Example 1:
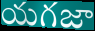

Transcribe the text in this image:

యగజా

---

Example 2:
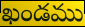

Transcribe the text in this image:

ఖండము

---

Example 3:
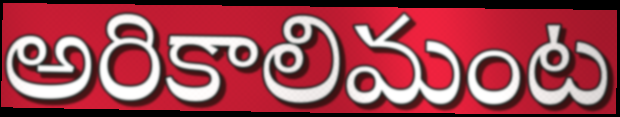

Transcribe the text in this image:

అరికాలిమంట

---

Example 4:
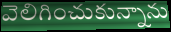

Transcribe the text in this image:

వెలిగించుకున్నాను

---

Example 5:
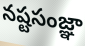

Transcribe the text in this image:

నష్టసంజ్ఞా